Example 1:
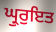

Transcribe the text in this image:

ਘ੍ਰੁਰੁਇਤ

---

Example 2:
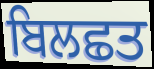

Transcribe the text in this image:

ਬਿਲਛਤ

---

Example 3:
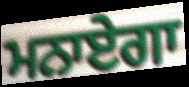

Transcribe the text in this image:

ਮਨਾਏਗਾ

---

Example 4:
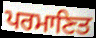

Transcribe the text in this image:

ਪਰਮਾਣਿਤ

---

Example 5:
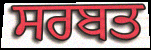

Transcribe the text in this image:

ਸਰਬਤ